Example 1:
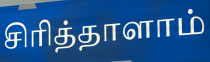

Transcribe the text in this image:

சிரித்தாளாம்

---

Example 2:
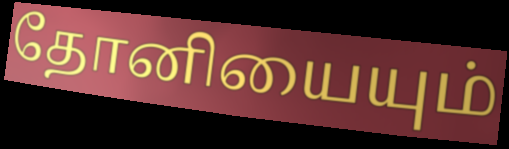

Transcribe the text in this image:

தோனியையும்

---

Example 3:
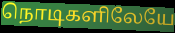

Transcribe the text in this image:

நொடிகளிலேயே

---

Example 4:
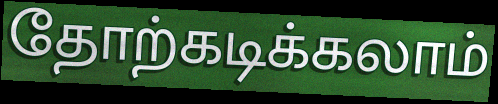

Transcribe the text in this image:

தோற்கடிக்கலாம்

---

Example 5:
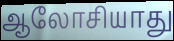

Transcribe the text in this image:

ஆலோசியாது